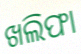
ଖଲିଫା